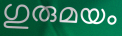
ഗുരുമയം